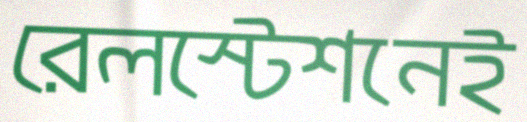
রেলস্টেশনেই